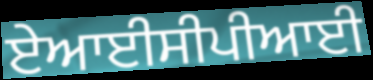
ਏਆਈਸੀਪੀਆਈ